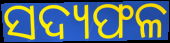
ସଦ୍ୟଫଳ